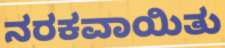
ನರಕವಾಯಿತು